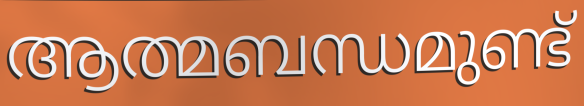
ആത്മബന്ധമുണ്ട്